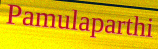
Pamulaparthi